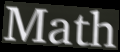
Math